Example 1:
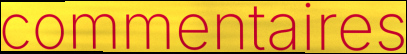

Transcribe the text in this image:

commentaires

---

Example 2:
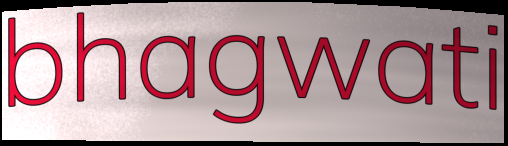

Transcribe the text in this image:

bhagwati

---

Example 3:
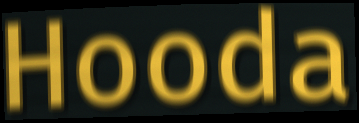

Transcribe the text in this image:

Hooda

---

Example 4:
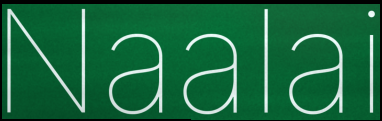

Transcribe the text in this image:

Naalai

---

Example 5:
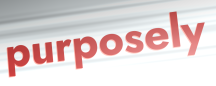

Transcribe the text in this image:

purposely